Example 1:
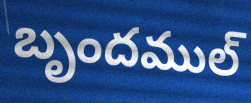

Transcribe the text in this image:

బృందముల్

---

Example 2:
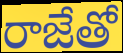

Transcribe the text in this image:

రాజేతో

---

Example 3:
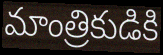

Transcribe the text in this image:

మాంత్రికుడికి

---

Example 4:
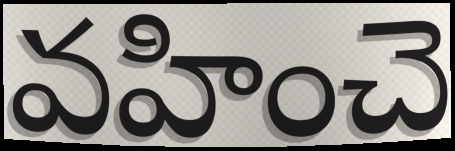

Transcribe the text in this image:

వహించె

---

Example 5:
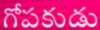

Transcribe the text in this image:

గోపకుడు